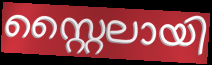
സ്റ്റൈലായി